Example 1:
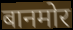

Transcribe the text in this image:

बानमोर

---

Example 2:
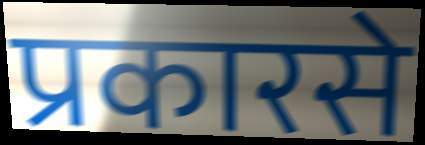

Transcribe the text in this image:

प्रकारसे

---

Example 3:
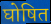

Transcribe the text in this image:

घोषित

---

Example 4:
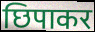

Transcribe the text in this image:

छिपाकर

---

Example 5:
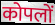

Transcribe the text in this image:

कोपलों